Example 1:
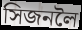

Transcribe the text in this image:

সিজনলৈ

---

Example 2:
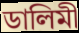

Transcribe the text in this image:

ডালিমী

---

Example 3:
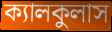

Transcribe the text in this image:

ক্যালকুলাস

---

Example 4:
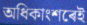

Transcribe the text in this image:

অধিকাংশৰেই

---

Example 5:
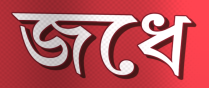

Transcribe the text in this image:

জধে